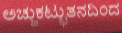
ಅಚ್ಚುಕಟ್ಟುತನದಿಂದ